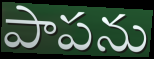
పాపను